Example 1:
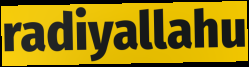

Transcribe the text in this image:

radiyallahu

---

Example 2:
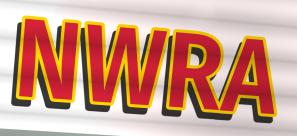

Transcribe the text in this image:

NWRA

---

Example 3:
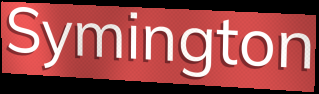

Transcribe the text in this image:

Symington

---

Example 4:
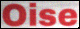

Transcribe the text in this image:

Oise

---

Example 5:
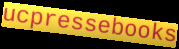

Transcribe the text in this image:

ucpressebooks